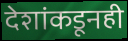
देशांकडूनही